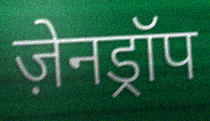
ज़ेनड्रॉप